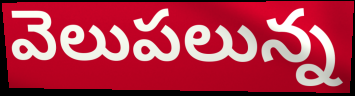
వెలుపలున్న